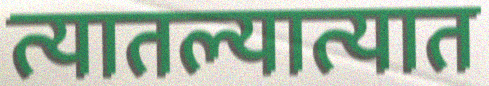
त्यातल्यात्यात